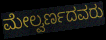
ಮೇಲ್ವರ್ಣದವರು